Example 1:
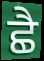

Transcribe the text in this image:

ਛੈ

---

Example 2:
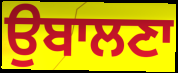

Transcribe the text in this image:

ਉਬਾਲਣਾ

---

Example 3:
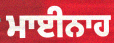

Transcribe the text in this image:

ਮਾਈਨਾਹ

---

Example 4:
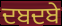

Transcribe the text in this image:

ਦਬਦਬੇ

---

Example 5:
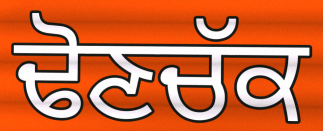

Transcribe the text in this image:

ਢੋਣਚੱਕ